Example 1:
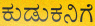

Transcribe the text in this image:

ಕುಡುಕನಿಗೆ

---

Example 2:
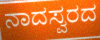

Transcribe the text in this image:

ನಾದಸ್ವರದ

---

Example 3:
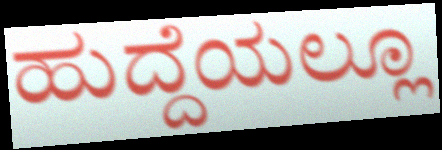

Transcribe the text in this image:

ಹುದ್ದೆಯಲ್ಲೂ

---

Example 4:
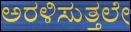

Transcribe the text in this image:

ಅರಳಿಸುತ್ತಲೇ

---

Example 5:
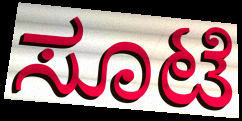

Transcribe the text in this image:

ಸೂಟೆ